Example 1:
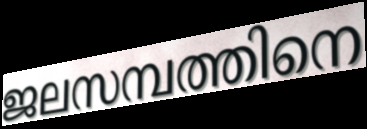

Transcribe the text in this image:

ജലസമ്പത്തിനെ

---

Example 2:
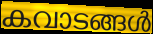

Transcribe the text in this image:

കവാടങ്ങൾ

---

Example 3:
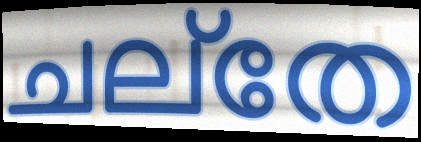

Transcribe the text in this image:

ചല്തേ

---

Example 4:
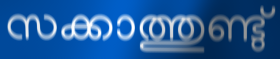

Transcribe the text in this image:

സക്കാത്തുണ്ടു്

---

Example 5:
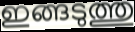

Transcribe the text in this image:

ഇങ്ങടുത്തു